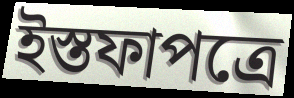
ইস্তফাপত্রে